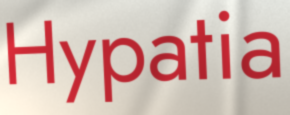
Hypatia